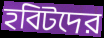
হবিটদের